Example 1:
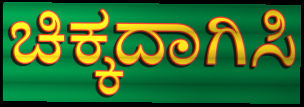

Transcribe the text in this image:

ಚಿಕ್ಕದಾಗಿಸಿ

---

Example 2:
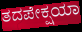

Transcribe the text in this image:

ತದಪೇಕ್ಷಯಾ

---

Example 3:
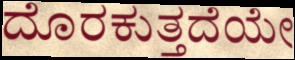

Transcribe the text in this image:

ದೊರಕುತ್ತದೆಯೇ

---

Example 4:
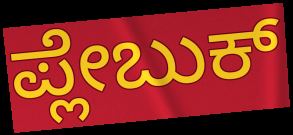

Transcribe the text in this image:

ಪ್ಲೇಬುಕ್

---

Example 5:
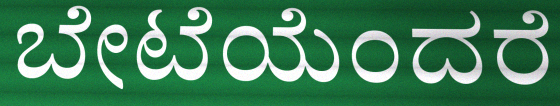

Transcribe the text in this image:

ಬೇಟೆಯೆಂದರೆ